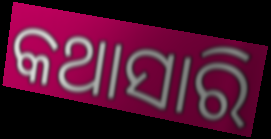
କଥାସାରି